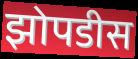
झोपडीस